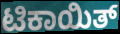
ಟಿಕಾಯಿತ್